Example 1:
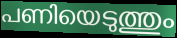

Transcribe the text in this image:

പണിയെടുത്തും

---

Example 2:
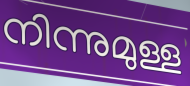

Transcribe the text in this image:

നിന്നുമുള്ള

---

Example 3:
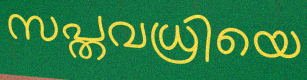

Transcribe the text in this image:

സപ്തവധ്രിയെ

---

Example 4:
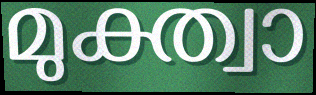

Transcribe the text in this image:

മുക്ത്വാ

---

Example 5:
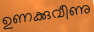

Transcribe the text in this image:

ഉണക്കുവീണു